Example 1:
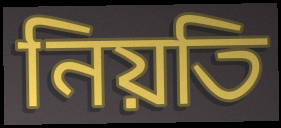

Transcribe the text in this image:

নিয়তি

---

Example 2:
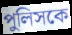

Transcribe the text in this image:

পুলিসকে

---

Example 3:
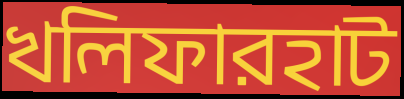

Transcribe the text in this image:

খলিফারহাট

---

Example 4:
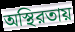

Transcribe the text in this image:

অস্থিরতায়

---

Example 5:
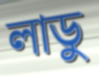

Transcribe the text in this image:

লাডু